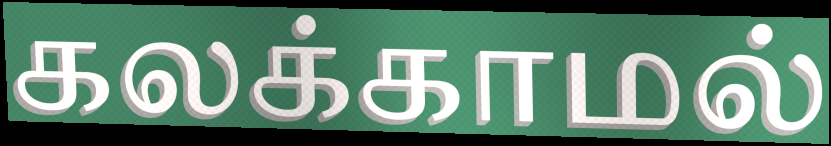
கலக்காமல்